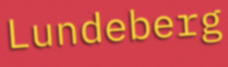
Lundeberg